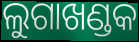
ଲୁଗାଖଣ୍ଡକ